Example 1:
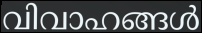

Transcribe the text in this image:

വിവാഹങ്ങൾ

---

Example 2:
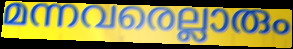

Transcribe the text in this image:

മന്നവരെല്ലാരും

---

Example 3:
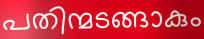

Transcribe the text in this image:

പതിന്മടങ്ങാകും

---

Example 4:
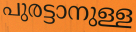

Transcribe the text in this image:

പുരട്ടാനുള്ള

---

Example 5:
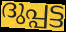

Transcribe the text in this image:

ദുപ്പട്ട